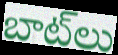
బాట్‌లు